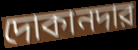
দোকানদার